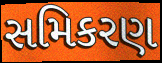
સમિકરણ